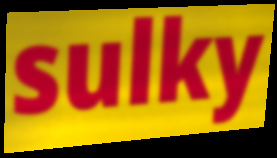
sulky